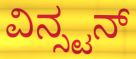
ವಿನ್ಸ್ಟನ್